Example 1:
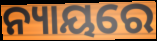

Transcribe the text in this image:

ନ୍ୟାୟରେ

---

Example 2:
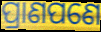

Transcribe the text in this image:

ପ୍ରାଣପଣେ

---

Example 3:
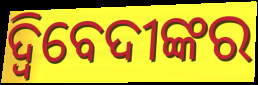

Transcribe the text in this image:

ଦ୍ଵିବେଦୀଙ୍କର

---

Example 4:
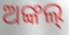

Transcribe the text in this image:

ଅଙ୍କଲ୍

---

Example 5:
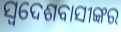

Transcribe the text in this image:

ସ୍ୱଦେଶବାସୀଙ୍କର